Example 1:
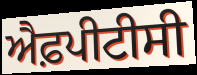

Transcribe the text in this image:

ਐਫ਼ਪੀਟੀਸੀ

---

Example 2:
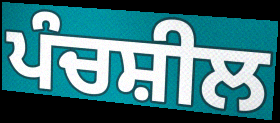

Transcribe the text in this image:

ਪੰਚਸ਼ੀਲ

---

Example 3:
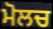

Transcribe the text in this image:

ਮੋਲਚ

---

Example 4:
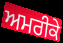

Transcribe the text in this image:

ਅਮਰੀਕੇ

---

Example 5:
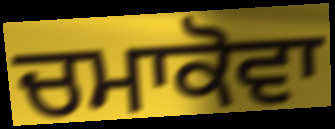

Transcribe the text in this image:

ਚਮਾਕੋਵਾ